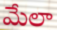
మేలా